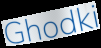
Ghodki